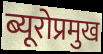
ब्यूरोप्रमुख